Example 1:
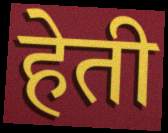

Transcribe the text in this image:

हेती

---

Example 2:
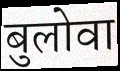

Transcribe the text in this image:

बुलोवा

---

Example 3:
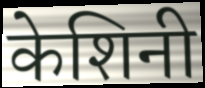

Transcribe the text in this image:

केशिनी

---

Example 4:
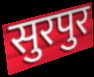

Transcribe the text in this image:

सुरपुर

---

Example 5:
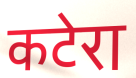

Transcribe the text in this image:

कटेरा